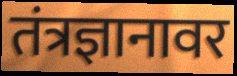
तंत्रज्ञानावर